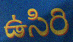
ఉసిరి